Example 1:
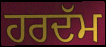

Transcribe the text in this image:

ਹਰਦੱਮ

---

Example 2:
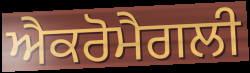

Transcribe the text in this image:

ਐਕਰੋਮੈਗਲੀ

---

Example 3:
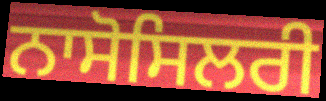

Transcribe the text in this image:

ਨਾਸੋਸਿਲਰੀ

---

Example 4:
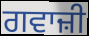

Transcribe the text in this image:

ਗਵਾਜ਼ੀ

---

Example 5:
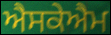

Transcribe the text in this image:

ਐਸਕੇਐਮ